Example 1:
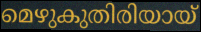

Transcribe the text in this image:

മെഴുകുതിരിയായ്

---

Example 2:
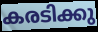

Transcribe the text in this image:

കരടിക്കു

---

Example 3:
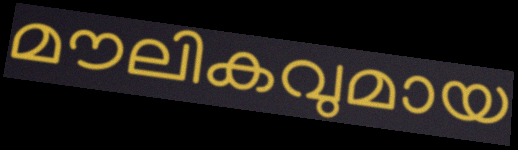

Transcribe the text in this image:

മൗലികവുമായ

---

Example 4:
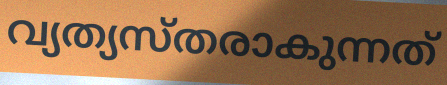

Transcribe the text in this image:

വ്യത്യസ്തരാകുന്നത്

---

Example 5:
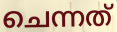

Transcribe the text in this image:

ചെന്നത്